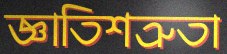
জ্ঞাতিশত্রুতা